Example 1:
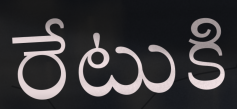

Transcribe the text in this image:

రేటుకి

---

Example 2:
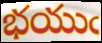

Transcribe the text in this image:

భయుఁ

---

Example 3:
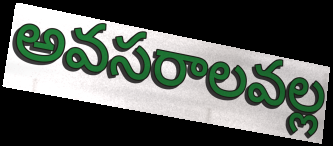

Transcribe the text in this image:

అవసరాలవల్ల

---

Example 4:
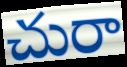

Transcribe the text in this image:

చురా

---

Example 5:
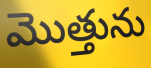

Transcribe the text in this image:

మొత్తును